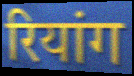
रियांग